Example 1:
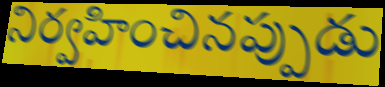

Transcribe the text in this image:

నిర్వహించినప్పుడు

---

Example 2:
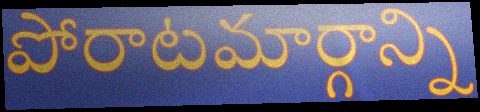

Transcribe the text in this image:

పోరాటమార్గాన్ని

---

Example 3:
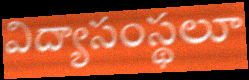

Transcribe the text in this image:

విద్యాసంస్థలూ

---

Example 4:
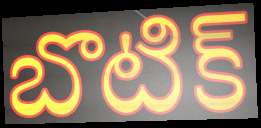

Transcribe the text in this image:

బొటిక్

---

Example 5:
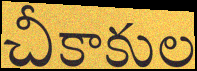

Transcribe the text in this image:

చీకాకుల